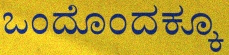
ಒಂದೊಂದಕ್ಕೂ